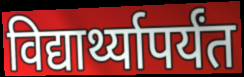
विद्यार्थ्यापर्यंत